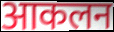
आकलन